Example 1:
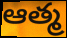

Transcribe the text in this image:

ఆత్మ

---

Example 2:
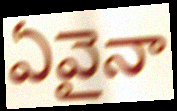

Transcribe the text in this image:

ఏవైనా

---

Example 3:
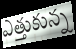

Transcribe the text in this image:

ఎత్తుకున్న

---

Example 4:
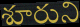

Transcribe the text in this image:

శూరుని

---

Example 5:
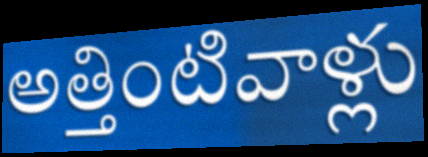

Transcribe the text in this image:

అత్తింటివాళ్లు